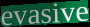
evasive